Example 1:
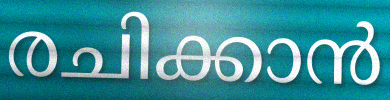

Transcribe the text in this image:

രചിക്കാൻ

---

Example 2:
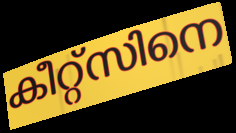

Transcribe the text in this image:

കീറ്റ്സിനെ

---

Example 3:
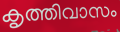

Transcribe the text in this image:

കൃത്തിവാസം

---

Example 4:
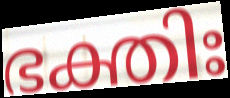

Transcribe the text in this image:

ഭക്തിഃ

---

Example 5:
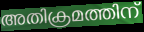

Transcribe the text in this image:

അതിക്രമത്തിന്